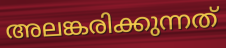
അലങ്കരിക്കുന്നത്